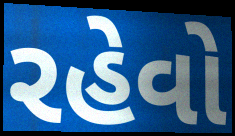
રહેવો